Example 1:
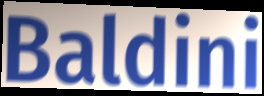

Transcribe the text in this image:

Baldini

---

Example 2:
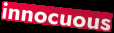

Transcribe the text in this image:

innocuous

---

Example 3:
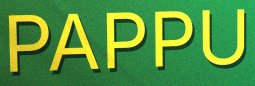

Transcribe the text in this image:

PAPPU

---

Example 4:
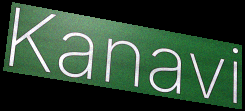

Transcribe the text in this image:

Kanavi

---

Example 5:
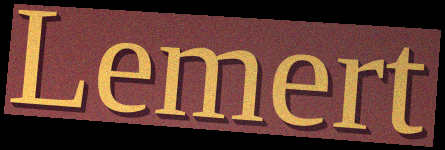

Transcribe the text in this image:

Lemert